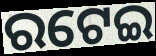
ରଟେଇ